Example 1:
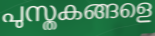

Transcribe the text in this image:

പുസ്തകങ്ങളെ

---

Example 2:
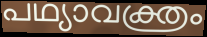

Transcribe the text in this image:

പഥ്യാവക്ത്രം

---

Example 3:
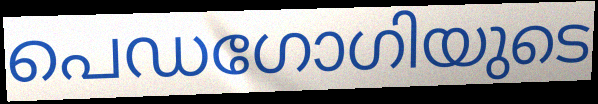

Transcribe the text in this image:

പെഡഗോഗിയുടെ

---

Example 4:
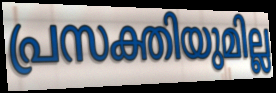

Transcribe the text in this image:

പ്രസക്തിയുമില്ല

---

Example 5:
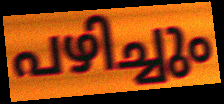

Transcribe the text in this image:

പഴിച്ചും